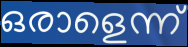
ഒരാളെന്ന്